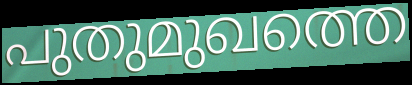
പുതുമുഖത്തെ